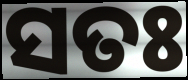
ସତଃ